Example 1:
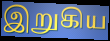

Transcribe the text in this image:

இறுகிய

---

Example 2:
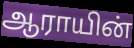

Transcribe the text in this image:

ஆராயின்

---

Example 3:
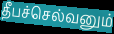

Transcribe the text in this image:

தீபச்செல்வனும்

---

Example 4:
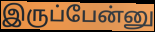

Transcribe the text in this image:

இருப்பேன்னு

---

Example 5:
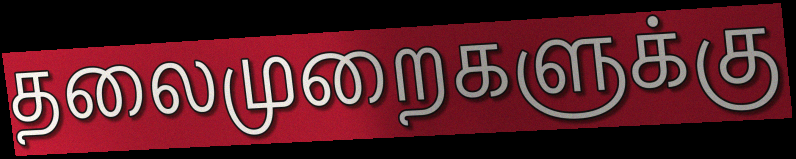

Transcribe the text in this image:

தலைமுறைகளுக்கு